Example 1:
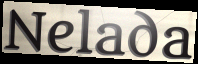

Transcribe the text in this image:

Nelada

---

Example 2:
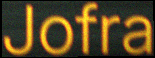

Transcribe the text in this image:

Jofra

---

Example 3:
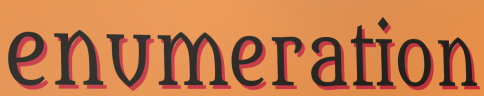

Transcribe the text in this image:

enumeration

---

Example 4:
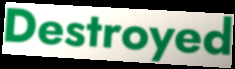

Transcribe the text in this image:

Destroyed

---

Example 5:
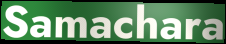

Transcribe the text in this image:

Samachara